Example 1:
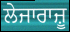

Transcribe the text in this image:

ਲੇਜਾਰਾਜ਼ੂ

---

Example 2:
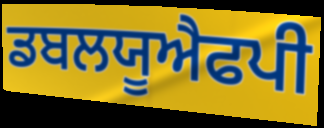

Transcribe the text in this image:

ਡਬਲਯੂਐਫਪੀ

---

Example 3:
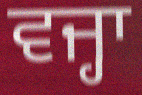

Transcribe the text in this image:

ਵਜ੍ਹਾ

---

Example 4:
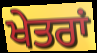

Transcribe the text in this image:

ਖੇਤਰਾਂ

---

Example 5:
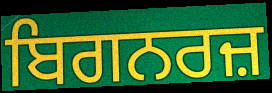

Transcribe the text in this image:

ਬਿਗਨਰਜ਼